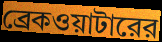
ব্রেকওয়াটারের